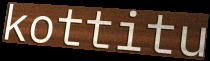
kottitu